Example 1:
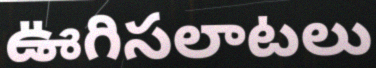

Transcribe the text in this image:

ఊగిసలాటలు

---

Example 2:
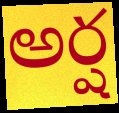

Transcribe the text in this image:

అర్ష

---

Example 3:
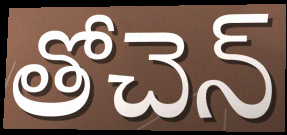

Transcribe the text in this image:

తోచెన్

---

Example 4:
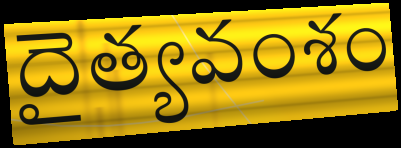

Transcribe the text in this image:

దైత్యవంశం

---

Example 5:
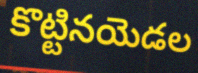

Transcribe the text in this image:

కొట్టినయెడల